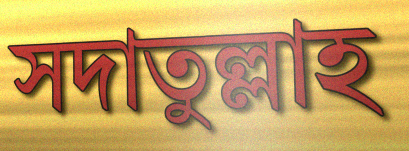
সদাতুল্লাহ